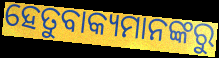
ହେତୁବାକ୍ୟମାନଙ୍କରୁ